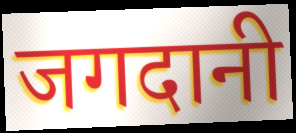
जगदानी